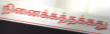
நினைக்கத்தக்கது